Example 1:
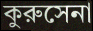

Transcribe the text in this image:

কুরুসেনা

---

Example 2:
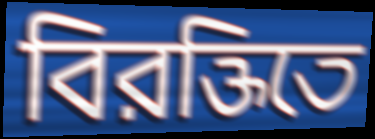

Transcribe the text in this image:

বিরক্তিতে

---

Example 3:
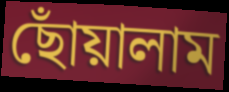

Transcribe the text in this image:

ছোঁয়ালাম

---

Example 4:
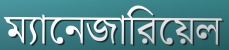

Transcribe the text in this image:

ম্যানেজারিয়েল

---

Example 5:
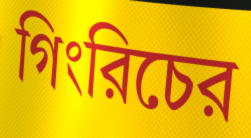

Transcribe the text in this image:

গিংরিচের